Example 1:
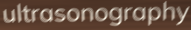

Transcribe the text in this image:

ultrasonography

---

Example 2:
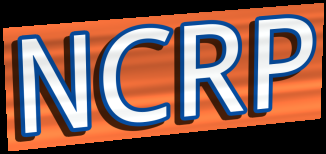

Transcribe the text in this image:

NCRP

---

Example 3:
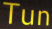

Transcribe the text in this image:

Tun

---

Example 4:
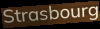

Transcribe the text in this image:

Strasbourg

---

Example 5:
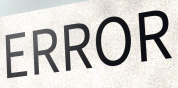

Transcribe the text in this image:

ERROR